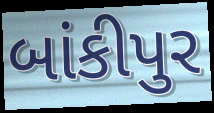
બાંકીપુર